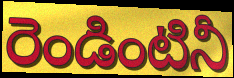
రెండింటినీ